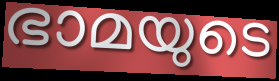
ഭാമയുടെ